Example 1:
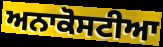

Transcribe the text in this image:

ਅਨਾਕੋਸਟੀਆ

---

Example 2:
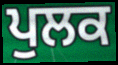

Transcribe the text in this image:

ਪੁਲਕ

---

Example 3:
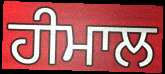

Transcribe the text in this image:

ਹੀਮਾਲ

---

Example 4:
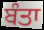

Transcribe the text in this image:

ਬੰਤਾ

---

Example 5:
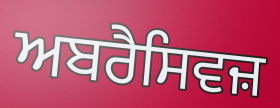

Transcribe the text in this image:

ਅਬਰੈਸਿਵਜ਼